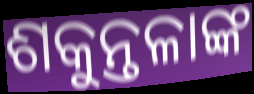
ଶକୁନ୍ତଳାଙ୍କ